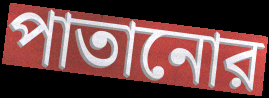
পাতানোর